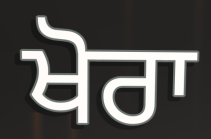
ਖੋਰਾ